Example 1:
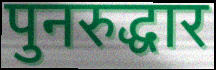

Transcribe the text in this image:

पुनरुद्धार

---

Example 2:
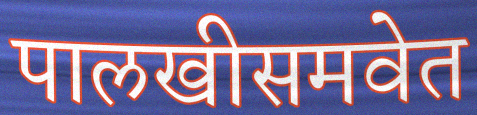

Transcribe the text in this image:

पालखीसमवेत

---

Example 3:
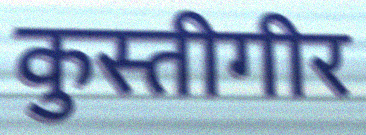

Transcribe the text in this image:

कुस्तीगीर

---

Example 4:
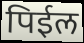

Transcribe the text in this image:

पिईल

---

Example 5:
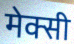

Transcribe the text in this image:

मेक्सी